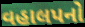
વહાલપનો